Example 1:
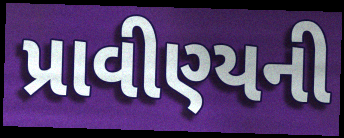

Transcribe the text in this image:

પ્રાવીણ્યની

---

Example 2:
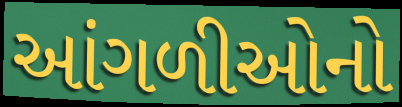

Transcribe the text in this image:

આંગળીઓનો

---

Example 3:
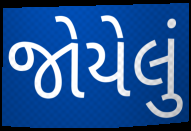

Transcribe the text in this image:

જોયેલું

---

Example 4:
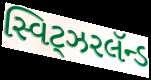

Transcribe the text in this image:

સ્વિટ્ઝરલૅન્ડ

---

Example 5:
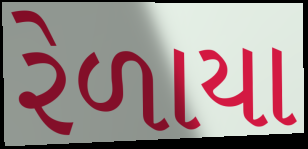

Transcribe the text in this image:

રેળાયા